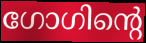
ഗോഗിന്റെ